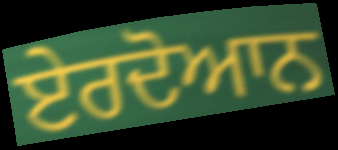
ਏਰਦੋਆਨ